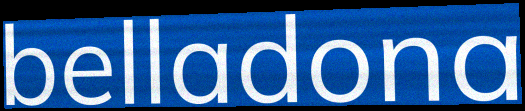
belladona